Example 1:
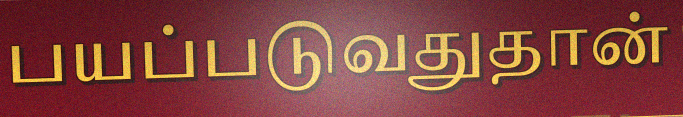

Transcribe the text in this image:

பயப்படுவதுதான்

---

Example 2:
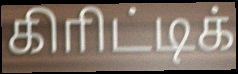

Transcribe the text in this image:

கிரிட்டிக்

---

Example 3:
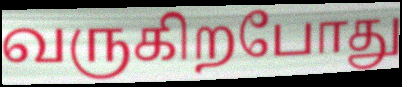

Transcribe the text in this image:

வருகிறபோது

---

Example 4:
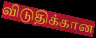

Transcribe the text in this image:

விடுதிக்கான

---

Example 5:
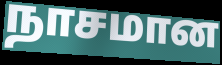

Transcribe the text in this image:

நாசமான